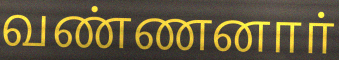
வண்ணனார்